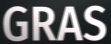
GRAS